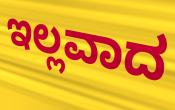
ಇಲ್ಲವಾದ